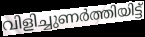
വിളിച്ചുണർത്തിയിട്ട്